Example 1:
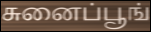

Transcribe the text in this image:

சுனைப்பூங்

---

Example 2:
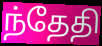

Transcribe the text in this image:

ந்தேதி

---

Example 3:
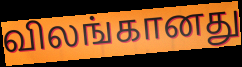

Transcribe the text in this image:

விலங்கானது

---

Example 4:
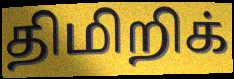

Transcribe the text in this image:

திமிறிக்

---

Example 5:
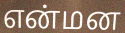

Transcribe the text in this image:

என்மன